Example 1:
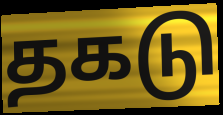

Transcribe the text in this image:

தகடு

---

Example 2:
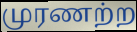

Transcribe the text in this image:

முரணற்ற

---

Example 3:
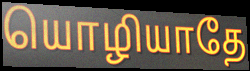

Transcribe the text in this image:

யொழியாதே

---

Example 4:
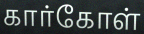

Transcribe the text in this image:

கார்கோள்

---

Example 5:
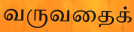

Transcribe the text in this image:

வருவதைக்